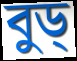
বুড্